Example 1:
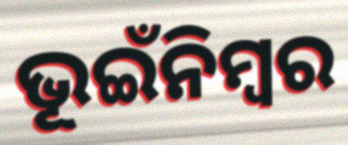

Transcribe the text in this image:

ଭୂଇଁନିମ୍ବର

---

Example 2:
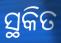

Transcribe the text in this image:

ସ୍ଥକିତ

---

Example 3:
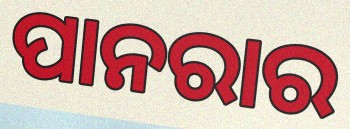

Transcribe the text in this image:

ପାନରାର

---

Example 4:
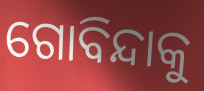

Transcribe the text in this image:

ଗୋବିନ୍ଦାକୁ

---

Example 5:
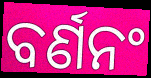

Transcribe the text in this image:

ବର୍ଣନଂ